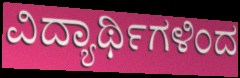
ವಿದ್ಯಾರ್ಥಿಗಳಿಂದ